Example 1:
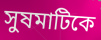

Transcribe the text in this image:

সুষমাটিকে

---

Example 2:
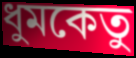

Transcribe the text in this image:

ধুমকেতু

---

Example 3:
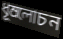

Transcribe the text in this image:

ধূম্রলোচন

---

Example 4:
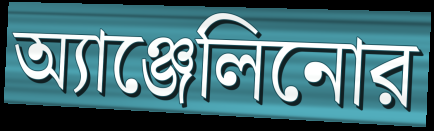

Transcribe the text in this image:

অ্যাঞ্জেলিনোর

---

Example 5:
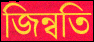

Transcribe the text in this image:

জিন্বতি